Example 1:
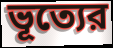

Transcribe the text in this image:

ভূত্যের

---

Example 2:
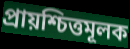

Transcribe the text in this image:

প্রায়শ্চিত্তমূলক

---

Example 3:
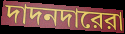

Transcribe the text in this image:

দাদনদারেরা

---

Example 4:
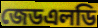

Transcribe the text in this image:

জেডএলডি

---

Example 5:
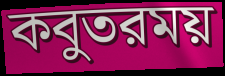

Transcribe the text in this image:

কবুতরময়